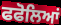
ਫਫੋਲਿਆਂ